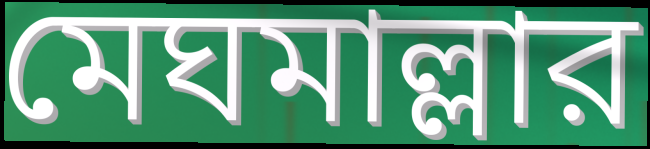
মেঘমাল্লার